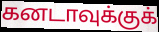
கனடாவுக்குக்